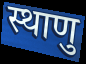
स्थाणु